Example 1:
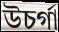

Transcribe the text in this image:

উচৰ্গা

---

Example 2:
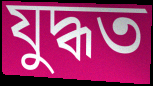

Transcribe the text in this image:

যুদ্ধত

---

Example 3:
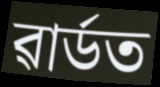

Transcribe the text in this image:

ৱাৰ্ডত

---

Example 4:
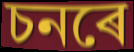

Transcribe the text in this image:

চনৰে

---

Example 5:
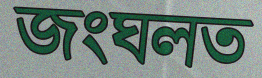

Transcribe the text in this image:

জংঘলত